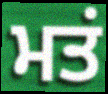
ਮਤਂ